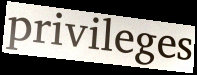
privileges